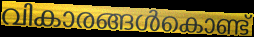
വികാരങ്ങൾകൊണ്ട്